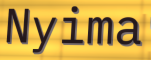
Nyima